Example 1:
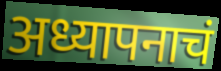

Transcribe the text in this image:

अध्यापनाचं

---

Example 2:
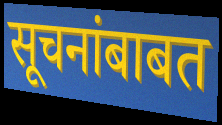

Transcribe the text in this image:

सूचनांबाबत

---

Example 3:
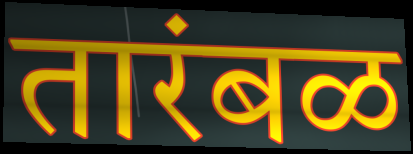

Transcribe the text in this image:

तारंबळ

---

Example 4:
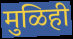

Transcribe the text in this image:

मुळिही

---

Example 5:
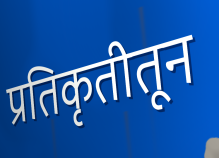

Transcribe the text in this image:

प्रतिकृतीतून